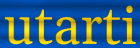
utarti